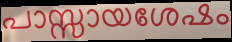
പാസ്സായശേഷം